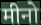
मीनो